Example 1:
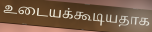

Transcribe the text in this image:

உடையக்கூடியதாக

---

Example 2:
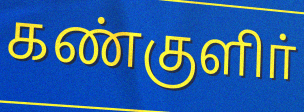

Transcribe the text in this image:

கண்குளிர்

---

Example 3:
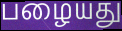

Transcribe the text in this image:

பழையது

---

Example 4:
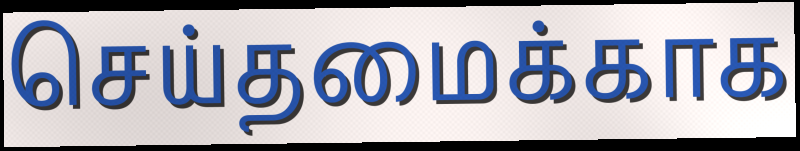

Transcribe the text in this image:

செய்தமைக்காக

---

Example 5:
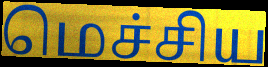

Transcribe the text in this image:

மெச்சிய